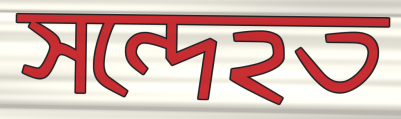
সন্দেহত